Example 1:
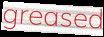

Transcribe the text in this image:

greased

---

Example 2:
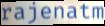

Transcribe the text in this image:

rajenatm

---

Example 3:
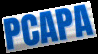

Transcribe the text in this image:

PCAPA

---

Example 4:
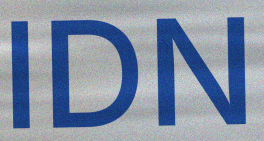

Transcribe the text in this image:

IDN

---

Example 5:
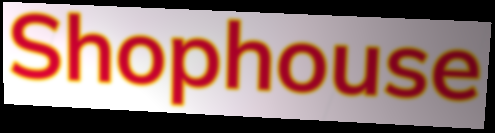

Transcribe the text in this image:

Shophouse